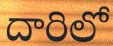
దారిలో